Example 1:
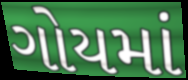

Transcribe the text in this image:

ગોયમાં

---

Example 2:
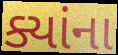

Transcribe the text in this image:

ક્યાંના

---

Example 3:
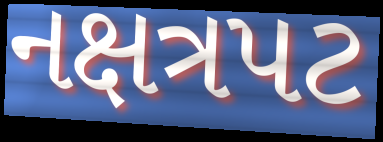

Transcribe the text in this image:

નક્ષત્રપટ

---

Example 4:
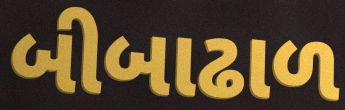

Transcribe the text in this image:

બીબાઢાળ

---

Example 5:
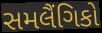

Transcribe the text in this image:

સમલૈંગિકો